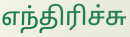
எந்திரிச்சு